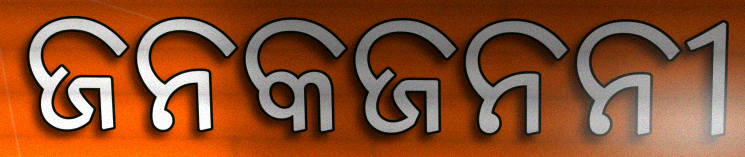
ଜନକଜନନୀ